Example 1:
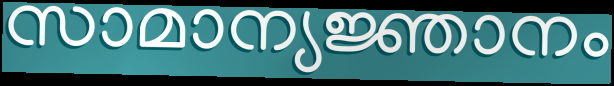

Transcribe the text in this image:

സാമാന്യജ്ഞാനം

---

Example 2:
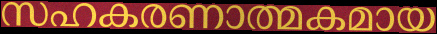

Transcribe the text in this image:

സഹകരണാത്മകമായ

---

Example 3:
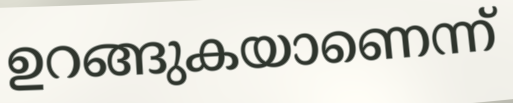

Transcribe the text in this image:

ഉറങ്ങുകയാണെന്ന്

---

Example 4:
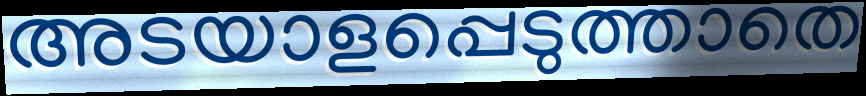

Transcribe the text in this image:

അടയാളപ്പെടുത്താതെ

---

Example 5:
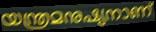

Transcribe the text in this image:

യന്ത്രമനുഷ്യനാണ്